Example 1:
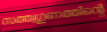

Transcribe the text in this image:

സത്ത്വഗുണത്തിന്റെ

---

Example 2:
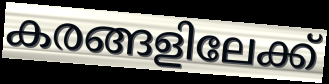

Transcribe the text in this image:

കരങ്ങളിലേക്ക്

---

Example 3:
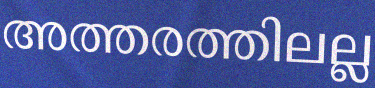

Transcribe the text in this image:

അത്തരത്തിലല്ല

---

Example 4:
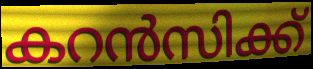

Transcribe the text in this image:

കറൻസിക്ക്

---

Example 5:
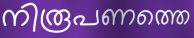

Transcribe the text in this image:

നിരൂപണത്തെ